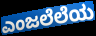
ಎಂಜಲೆಲೆಯ